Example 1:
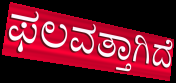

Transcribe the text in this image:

ಫಲವತ್ತಾಗಿದೆ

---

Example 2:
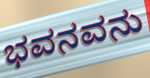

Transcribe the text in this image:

ಭವನವನು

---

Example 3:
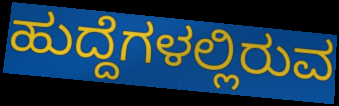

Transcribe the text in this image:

ಹುದ್ದೆಗಳಲ್ಲಿರುವ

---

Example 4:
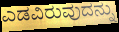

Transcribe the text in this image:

ಎಡವಿರುವುದನ್ನು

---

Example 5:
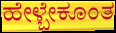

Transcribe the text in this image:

ಹೇಳ್ಬೇಕೂಂತ